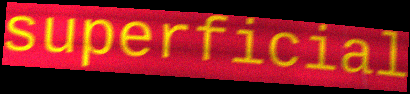
superficial